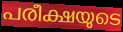
പരീക്ഷയുടെ